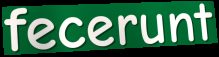
fecerunt